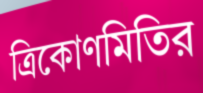
ত্রিকোণমিতির